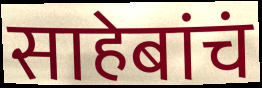
साहेबांचं